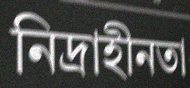
নিদ্ৰাহীনতা